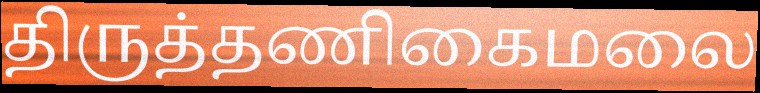
திருத்தணிகைமலை